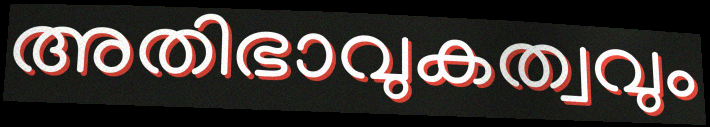
അതിഭാവുകത്വവും